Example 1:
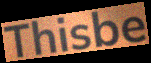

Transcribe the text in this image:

Thisbe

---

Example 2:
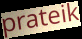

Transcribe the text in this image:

prateik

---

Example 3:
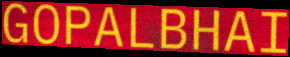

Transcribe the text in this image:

GOPALBHAI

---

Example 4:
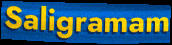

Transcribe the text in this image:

Saligramam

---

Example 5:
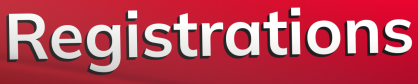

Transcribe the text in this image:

Registrations